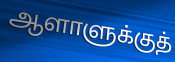
ஆளாளுக்குத்